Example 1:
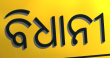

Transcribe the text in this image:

ବିଧାନୀ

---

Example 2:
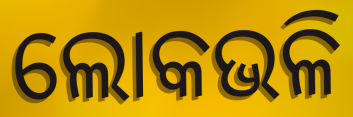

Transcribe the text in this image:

ଲୋକଭଳି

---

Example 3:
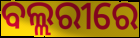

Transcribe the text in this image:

ବଲ୍ଲରୀରେ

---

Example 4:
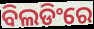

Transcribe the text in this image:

ବିଲଡିଂରେ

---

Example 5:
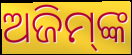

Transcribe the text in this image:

ଅଜିମ୍‌ଙ୍କ